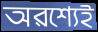
অৱশ্যেই